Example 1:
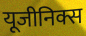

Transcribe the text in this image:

यूजीनिक्स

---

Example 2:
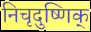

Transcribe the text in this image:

निचृदुष्णिक्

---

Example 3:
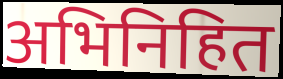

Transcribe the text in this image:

अभिनिहित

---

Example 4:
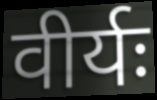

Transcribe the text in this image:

वीर्यः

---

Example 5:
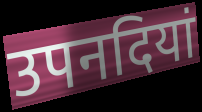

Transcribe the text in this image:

उपनदियां